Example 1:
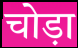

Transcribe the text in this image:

चोड़ा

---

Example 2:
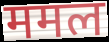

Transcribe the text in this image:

ममल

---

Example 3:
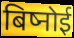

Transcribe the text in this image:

बिष्नोई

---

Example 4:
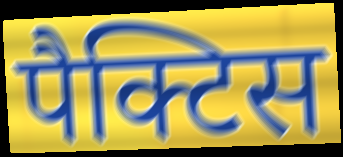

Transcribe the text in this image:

पैक्टिस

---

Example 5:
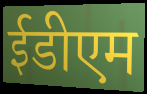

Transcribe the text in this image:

ईडीएम